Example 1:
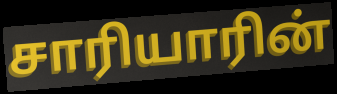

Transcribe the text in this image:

சாரியாரின்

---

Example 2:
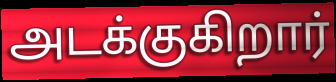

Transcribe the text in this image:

அடக்குகிறார்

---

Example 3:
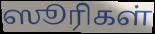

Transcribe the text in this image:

ஸூரிகள்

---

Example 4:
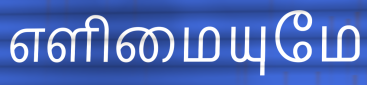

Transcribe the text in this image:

எளிமையுமே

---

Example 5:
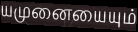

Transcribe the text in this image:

யமுனையையும்